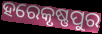
ହରେକୃଷ୍ଣପୁର